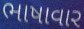
ભાષાવાર